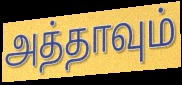
அத்தாவும்